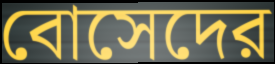
বোসেদের